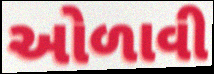
ઓળાવી